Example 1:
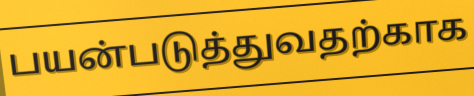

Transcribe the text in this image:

பயன்படுத்துவதற்காக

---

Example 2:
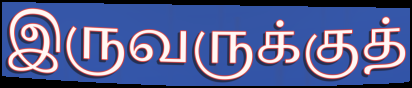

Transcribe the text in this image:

இருவருக்குத்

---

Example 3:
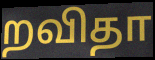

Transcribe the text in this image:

றவிதா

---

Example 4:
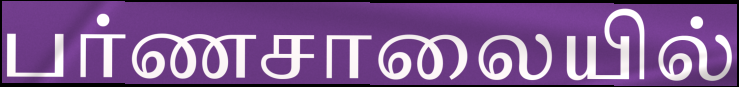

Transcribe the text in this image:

பர்ணசாலையில்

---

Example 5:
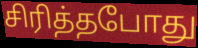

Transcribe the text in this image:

சிரித்தபோது